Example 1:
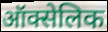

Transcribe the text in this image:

ऑक्सेलिक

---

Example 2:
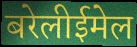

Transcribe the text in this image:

बरेलीईमेल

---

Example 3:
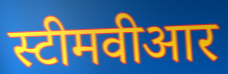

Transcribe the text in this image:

स्टीमवीआर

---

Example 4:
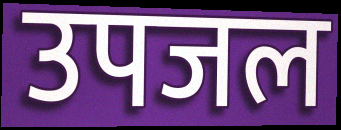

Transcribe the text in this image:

उपजल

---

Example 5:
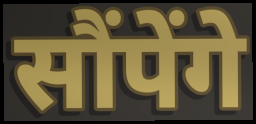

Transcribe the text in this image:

सौंपेंगे